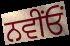
ਨਵੀਂਓਂ